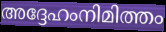
അദ്ദേഹംനിമിത്തം